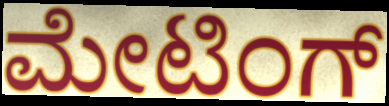
ಮೇಟಿಂಗ್